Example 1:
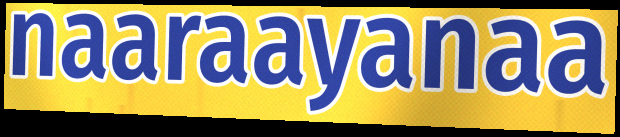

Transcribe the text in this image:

naaraayanaa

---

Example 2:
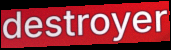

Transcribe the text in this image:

destroyer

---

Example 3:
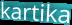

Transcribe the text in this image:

kartika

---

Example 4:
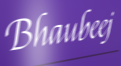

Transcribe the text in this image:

Bhaubeej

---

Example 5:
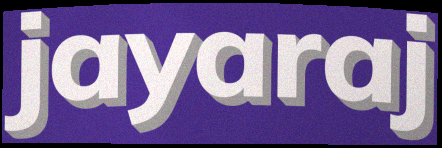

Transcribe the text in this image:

jayaraj